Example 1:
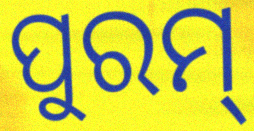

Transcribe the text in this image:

ପୁରମ୍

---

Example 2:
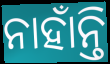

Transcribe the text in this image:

ନାହାଁନ୍ତି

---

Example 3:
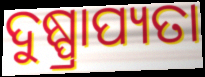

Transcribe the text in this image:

ଦୁଷ୍ପ୍ରାପ୍ୟତା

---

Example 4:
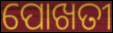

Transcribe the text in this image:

ପୋଖତୀ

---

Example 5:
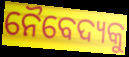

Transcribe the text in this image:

ନୈବେଦ୍ୟକୁ